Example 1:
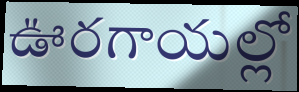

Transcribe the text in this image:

ఊరగాయల్లో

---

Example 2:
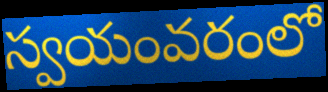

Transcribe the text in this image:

స్వయంవరంలో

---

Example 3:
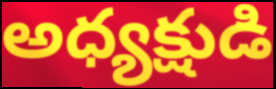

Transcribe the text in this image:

అధ్యక్షుడి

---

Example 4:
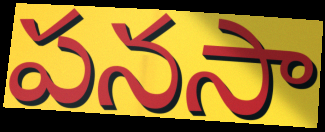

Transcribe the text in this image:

పనసా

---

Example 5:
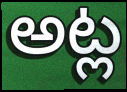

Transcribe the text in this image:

అట్ల